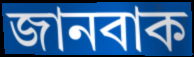
জানবাক